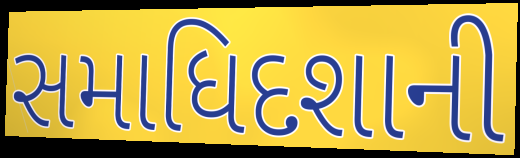
સમાધિદશાની